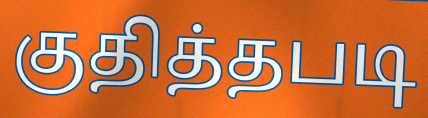
குதித்தபடி